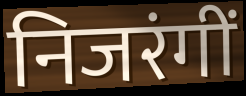
निजरंगीं